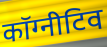
कॉग्नीटिव